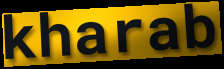
kharab